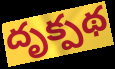
దృక్పథ